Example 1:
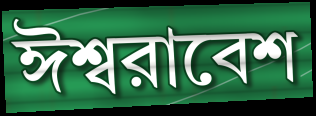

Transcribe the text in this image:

ঈশ্বরাবেশ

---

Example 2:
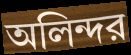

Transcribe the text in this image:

অলিন্দর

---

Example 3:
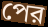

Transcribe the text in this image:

পের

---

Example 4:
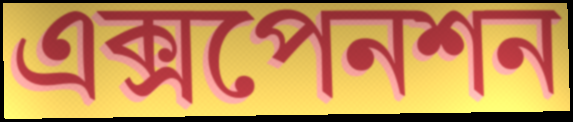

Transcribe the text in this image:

এক্সপেনশন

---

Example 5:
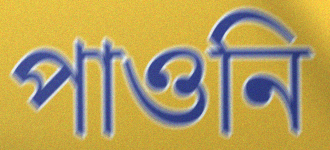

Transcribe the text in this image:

পাওনি